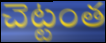
చెట్టంత